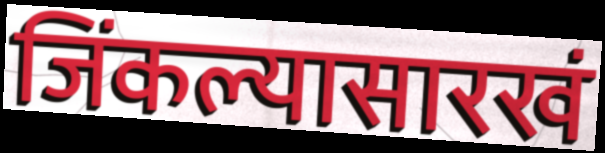
जिंकल्यासारखं